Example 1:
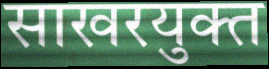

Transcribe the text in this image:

साखरयुक्त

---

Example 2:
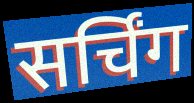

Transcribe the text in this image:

सर्चिंग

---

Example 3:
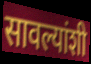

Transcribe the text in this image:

सावल्यांशी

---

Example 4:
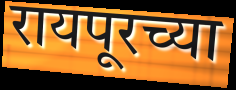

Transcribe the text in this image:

रायपूरच्या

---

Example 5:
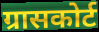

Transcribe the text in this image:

ग्रासकोर्ट